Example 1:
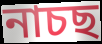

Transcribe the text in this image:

নাচছ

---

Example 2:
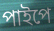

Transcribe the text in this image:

পাইপে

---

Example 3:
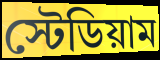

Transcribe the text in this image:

স্টেডিয়াম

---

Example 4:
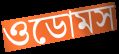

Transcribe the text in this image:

ওডোমস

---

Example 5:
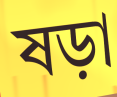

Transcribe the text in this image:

ষড়া